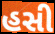
હસી